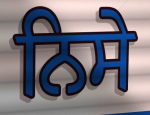
ਨਿਸੇ